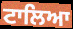
ਟਾਲਿਆ